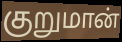
குறுமான்